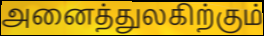
அனைத்துலகிற்கும்